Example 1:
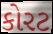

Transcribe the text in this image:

કોરટ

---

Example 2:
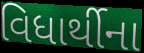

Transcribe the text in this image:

વિધાર્થીના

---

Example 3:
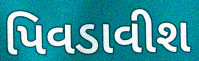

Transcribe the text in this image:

પિવડાવીશ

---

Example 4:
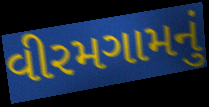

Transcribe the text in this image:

વીરમગામનું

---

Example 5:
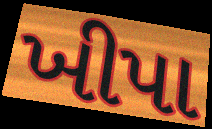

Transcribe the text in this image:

ખીપા